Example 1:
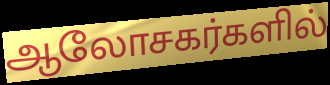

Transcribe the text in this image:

ஆலோசகர்களில்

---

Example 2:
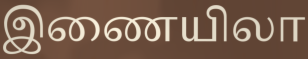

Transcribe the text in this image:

இணையிலா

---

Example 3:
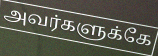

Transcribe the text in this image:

அவர்களுக்கே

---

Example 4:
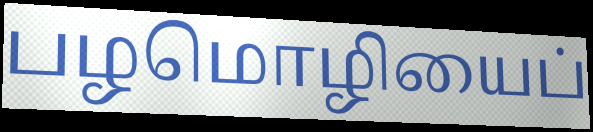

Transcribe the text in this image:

பழமொழியைப்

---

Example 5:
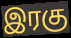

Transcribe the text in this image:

இரகு